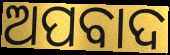
ଅପବାଦ